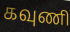
கவுணி